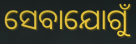
ସେବାଯୋଗୁଁ